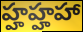
హ్హహ్హహా